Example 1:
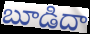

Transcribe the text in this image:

బూడిదా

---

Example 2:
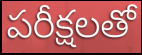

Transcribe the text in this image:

పరీక్షలతో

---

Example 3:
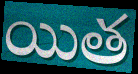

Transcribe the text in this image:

యిత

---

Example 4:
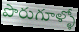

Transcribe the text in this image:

పొరుగూళ్ళో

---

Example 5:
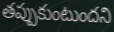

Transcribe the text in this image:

తప్పుకుంటుందని